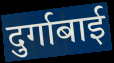
दुर्गाबाई